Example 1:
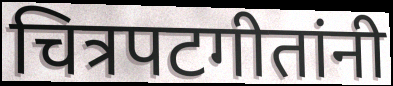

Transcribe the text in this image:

चित्रपटगीतांनी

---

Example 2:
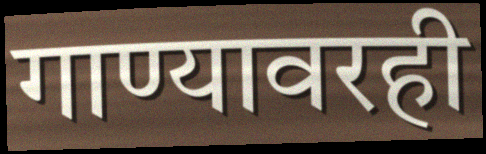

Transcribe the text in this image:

गाण्यावरही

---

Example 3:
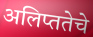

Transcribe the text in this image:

अलिप्ततेचे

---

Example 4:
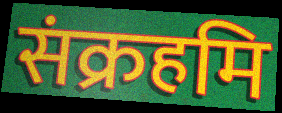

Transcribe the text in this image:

संक्रहमि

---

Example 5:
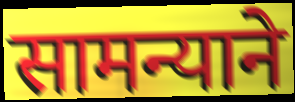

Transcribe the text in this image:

सामन्याने